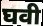
घवी